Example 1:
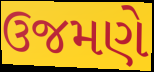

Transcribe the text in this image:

ઉજમણે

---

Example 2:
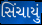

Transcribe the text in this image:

સિંચાયું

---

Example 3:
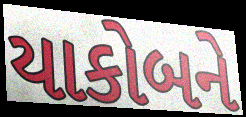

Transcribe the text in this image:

યાકોબને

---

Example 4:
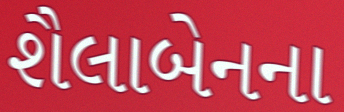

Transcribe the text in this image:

શૈલાબેનના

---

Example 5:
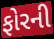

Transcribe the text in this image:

ફોરની